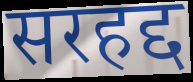
सरहद्द